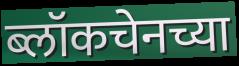
ब्लॉकचेनच्या